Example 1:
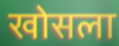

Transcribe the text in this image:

खोसला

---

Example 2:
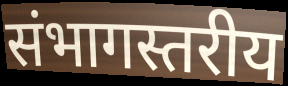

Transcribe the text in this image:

संभागस्तरीय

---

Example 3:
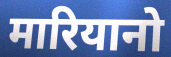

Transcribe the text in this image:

मारियानो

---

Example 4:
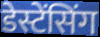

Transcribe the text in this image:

डेस्टेंसिंग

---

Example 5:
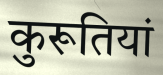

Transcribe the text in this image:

कुरूतियां